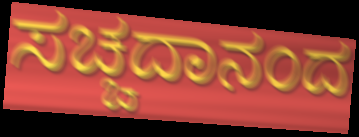
ಸಚ್ಚದಾನಂದ